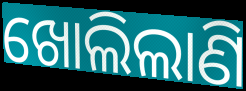
ଖୋଲିଲାଣି